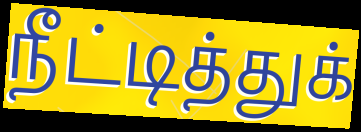
நீட்டித்துக்